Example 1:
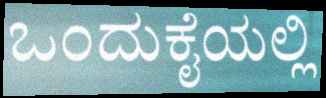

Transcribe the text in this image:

ಒಂದುಕೈಯಲ್ಲಿ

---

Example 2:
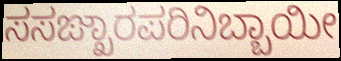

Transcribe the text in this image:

ಸಸಙ್ಖಾರಪರಿನಿಬ್ಬಾಯೀ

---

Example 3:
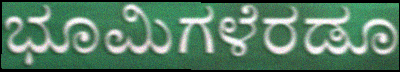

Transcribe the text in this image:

ಭೂಮಿಗಳೆರಡೂ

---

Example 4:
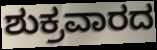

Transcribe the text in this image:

ಶುಕ್ರವಾರದ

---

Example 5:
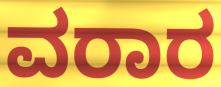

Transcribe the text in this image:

ವರಾರ